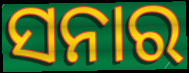
ସନାର